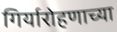
गिर्यारोहणाच्या